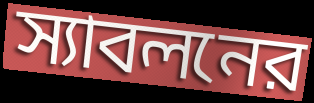
স্যাবলনের